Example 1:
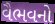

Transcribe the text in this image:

વૈભવનો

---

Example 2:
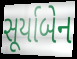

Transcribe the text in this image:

સૂર્યાબેન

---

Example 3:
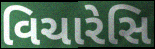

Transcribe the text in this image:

વિચારેસિ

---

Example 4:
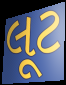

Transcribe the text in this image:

લૂટ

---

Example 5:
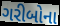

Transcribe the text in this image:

ગરીબોના